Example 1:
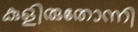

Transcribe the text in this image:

കുളിരുതോന്നി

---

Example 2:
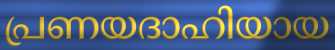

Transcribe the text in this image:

പ്രണയദാഹിയായ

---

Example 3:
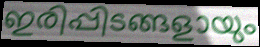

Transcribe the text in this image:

ഇരിപ്പിടങ്ങളായും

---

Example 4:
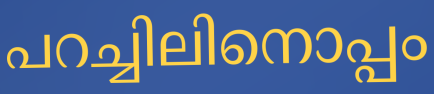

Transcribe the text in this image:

പറച്ചിലിനൊപ്പം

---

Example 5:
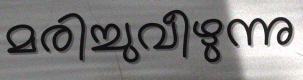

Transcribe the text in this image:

മരിച്ചുവീഴുന്നു